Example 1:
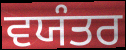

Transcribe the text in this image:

ਵਯੰਤਰ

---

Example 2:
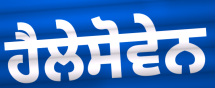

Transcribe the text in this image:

ਹੈਲੇਸੋਵੇਨ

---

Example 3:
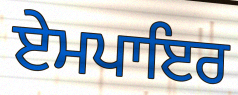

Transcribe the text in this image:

ਏਮਪਾਇਰ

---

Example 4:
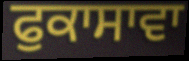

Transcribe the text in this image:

ਫੁਕਾਸਾਵਾ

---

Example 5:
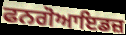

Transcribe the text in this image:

ਫਨਗੋਆਇਡਜ਼